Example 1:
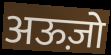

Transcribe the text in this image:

अऊज़ो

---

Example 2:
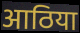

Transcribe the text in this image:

आठिया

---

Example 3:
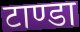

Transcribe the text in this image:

टाण्डा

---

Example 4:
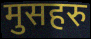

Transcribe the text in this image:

मुसहरु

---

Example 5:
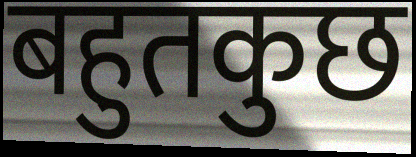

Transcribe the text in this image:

बहुतकुछ